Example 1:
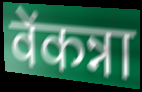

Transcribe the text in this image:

वेंकन्ना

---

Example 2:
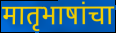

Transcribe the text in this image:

मातृभाषांचा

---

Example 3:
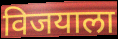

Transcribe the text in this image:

विजयाला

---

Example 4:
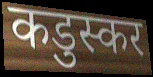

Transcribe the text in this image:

कडुस्कर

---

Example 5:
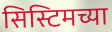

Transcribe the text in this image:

सिस्टिमच्या